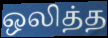
ஒலித்த